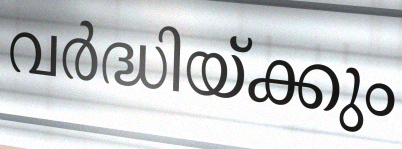
വർദ്ധിയ്ക്കും